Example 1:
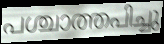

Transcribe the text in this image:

പശ്ചാത്തപിച്ചു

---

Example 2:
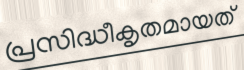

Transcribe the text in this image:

പ്രസിദ്ധീകൃതമായത്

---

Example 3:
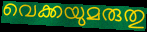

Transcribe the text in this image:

വെക്കയുമരുതു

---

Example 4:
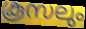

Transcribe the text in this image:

കൂസലും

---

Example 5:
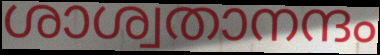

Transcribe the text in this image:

ശാശ്വതാനന്ദം